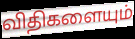
விதிகளையும்